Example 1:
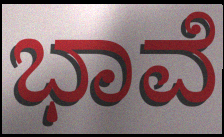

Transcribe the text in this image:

ಭಾವೆ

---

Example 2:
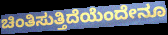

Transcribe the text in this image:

ಚಿಂತಿಸುತ್ತಿದೆಯೆಂದೇನೂ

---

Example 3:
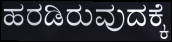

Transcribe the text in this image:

ಹರಡಿರುವುದಕ್ಕೆ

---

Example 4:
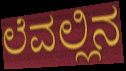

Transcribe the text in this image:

ಲೆವಲ್ಲಿನ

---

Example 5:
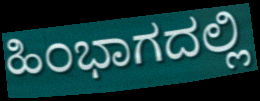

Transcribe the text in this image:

ಹಿಂಭಾಗದಲ್ಲಿ